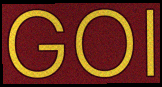
GOI